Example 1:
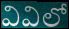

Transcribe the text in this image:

వివిలో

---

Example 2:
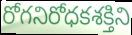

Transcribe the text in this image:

రోగనిరోధకశక్తిని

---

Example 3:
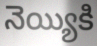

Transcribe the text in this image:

నెయ్యికి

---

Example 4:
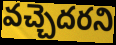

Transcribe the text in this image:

వచ్చెదరని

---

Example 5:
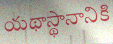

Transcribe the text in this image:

యథాస్థానానికి